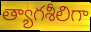
త్యాగశీలిగా